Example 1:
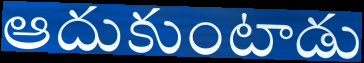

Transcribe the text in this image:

ఆదుకుంటాడు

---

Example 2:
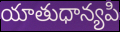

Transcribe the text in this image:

యాతుధాన్యపి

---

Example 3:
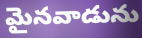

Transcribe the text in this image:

మైనవాడును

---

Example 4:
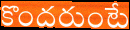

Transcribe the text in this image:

కొందరుంటే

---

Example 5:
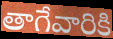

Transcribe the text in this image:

తాగేవారికి